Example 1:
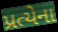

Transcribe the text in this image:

પ્રત્યેના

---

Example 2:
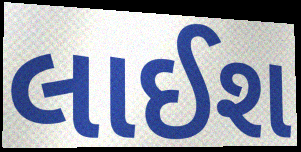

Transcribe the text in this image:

લાઈશ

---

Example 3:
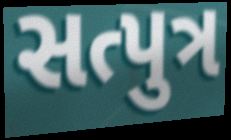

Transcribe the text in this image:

સત્પુત્ર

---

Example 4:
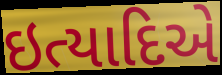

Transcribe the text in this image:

ઇત્યાદિએ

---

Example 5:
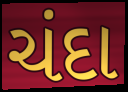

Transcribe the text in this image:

ચંદા